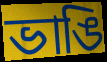
ভাঙি